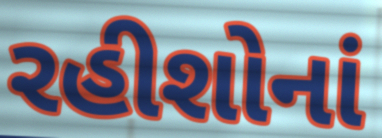
રહીશોનાં